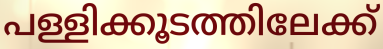
പള്ളിക്കൂടത്തിലേക്ക്